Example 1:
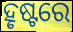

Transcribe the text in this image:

ହୃଷ୍ଟରେ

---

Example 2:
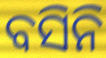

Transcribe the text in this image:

ବସିନି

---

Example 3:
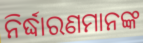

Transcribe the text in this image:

ନିର୍ଦ୍ଧାରଣମାନଙ୍କ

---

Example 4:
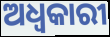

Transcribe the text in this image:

ଅଧ୍ବକାରୀ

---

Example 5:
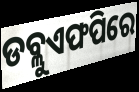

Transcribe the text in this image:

ଡବ୍ଲୁଏଫପିରେ